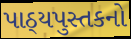
પાઠ્યપુસ્તકનો